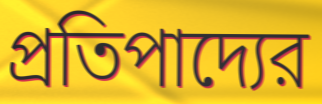
প্রতিপাদ্যের